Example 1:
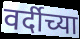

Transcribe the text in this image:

वर्दीच्या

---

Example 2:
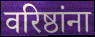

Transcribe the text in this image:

वरिष्ठांना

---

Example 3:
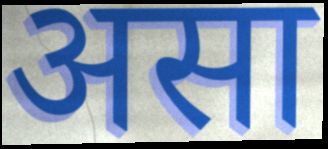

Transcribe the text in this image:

असा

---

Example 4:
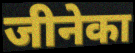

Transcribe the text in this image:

जीनेका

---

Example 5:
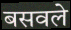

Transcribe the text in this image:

बसवले